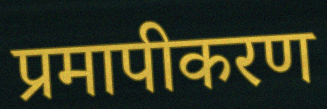
प्रमापीकरण